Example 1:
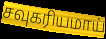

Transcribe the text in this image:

சவுகரியமாய்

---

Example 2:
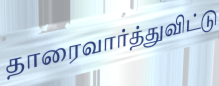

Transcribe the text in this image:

தாரைவார்த்துவிட்டு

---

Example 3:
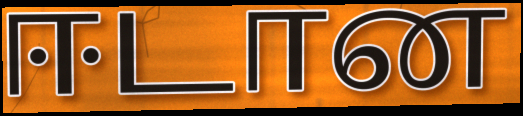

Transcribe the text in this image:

ஈடான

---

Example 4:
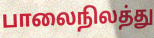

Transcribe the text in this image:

பாலைநிலத்து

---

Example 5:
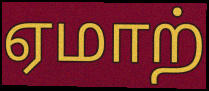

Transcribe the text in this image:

ஏமாற்